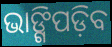
ଭାଙ୍ଗିପଡ଼ିବ